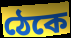
ঠেকে